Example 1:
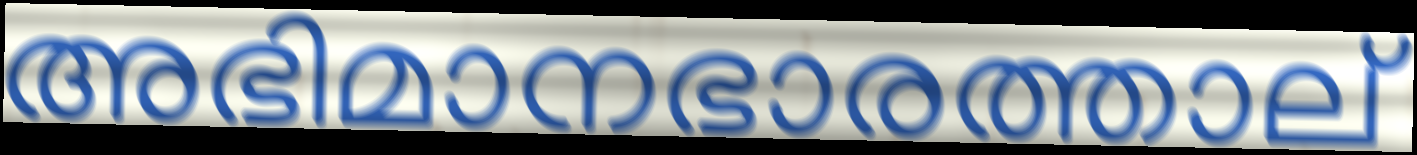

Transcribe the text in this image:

അഭിമാനഭാരത്താല്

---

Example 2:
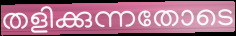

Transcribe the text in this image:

തളിക്കുന്നതോടെ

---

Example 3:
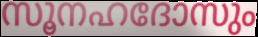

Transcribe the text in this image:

സൂനഹദോസും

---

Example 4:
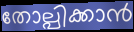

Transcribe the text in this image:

തോല്പിക്കാൻ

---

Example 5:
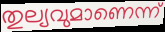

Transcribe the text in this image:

തുല്യവുമാണെന്ന്